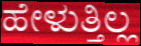
ಹೇಳುತ್ತಿಲ್ಲ